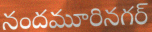
నందమూరినగర్